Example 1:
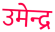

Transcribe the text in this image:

उमेन्द्र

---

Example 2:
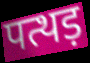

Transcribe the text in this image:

पत्थड़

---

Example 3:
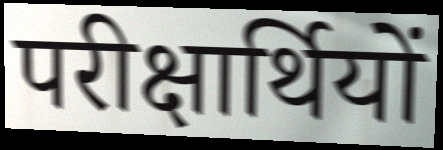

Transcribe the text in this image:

परीक्षार्थियों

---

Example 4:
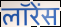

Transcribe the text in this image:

लॉरेंस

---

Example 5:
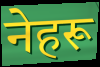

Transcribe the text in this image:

नेहरू